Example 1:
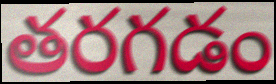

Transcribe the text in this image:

తరగడం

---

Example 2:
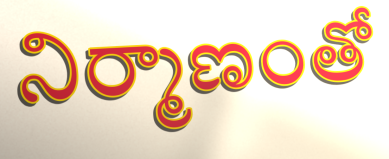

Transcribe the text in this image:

నిర్మాణంతో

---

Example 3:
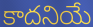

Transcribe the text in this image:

కాదనియే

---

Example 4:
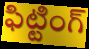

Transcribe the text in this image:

ఫిట్టింగ్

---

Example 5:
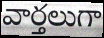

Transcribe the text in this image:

వార్తలుగా